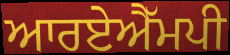
ਆਰਏਐੱਮਪੀ